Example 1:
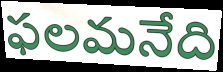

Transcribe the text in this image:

ఫలమనేది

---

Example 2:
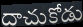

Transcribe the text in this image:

దాచుకోడు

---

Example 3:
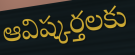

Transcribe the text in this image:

ఆవిష్కర్తలకు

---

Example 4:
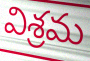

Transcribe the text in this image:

విశ్రమ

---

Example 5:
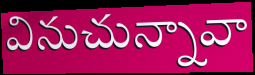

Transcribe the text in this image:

వినుచున్నావా